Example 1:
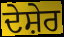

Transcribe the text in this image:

ਦੇਸ਼ੇਰ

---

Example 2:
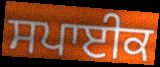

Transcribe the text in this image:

ਸਪਾਈਕ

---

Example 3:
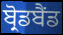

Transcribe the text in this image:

ਬ੍ਰੋਡਬੈਂਡ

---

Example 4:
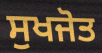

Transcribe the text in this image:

ਸੁਖਜੋਤ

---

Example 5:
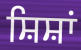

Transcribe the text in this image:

ਸ਼ਿਸ਼ਾਂ